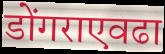
डोंगराएवढा